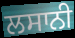
ਲਸਾਨੀ